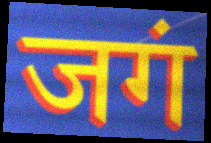
जगं